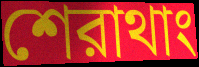
শেরাথাং